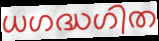
ധഗദ്ധഗിത